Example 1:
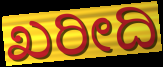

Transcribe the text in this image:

ಖರೀದಿ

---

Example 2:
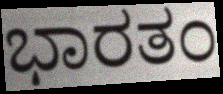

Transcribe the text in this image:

ಭಾರತಂ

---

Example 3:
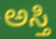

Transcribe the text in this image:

ಅಸ್ತಿ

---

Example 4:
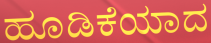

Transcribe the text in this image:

ಹೂಡಿಕೆಯಾದ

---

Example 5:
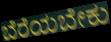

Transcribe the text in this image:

ಬೆರೆಯಬೇಕು